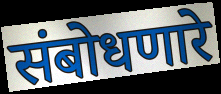
संबोधणारे